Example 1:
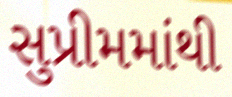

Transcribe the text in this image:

સુપ્રીમમાંથી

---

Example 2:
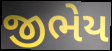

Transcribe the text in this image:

જીભેય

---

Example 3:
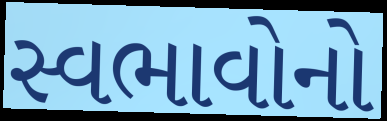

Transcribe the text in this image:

સ્વભાવોનો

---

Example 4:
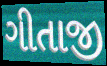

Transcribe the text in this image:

ગીતાજી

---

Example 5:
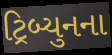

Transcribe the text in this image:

ટ્રિબ્યુનના